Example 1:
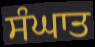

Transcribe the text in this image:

ਸੰਘਾਤ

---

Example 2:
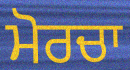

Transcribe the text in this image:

ਮੋਰਚਾ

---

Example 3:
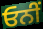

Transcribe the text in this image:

ਓਨੀਂ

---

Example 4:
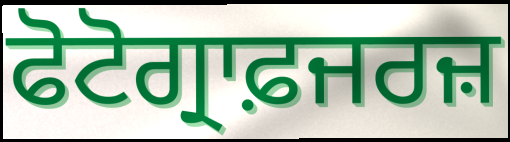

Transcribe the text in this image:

ਫੋਟੋਗ੍ਰਾਫ਼ਜਰਜ਼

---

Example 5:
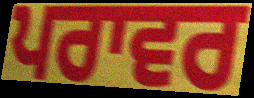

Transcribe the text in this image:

ਪਰਾਵਰ